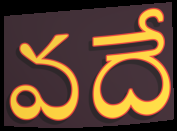
వదే